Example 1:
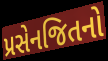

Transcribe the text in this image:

પ્રસેનજિતનો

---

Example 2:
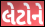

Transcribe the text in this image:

લેટોને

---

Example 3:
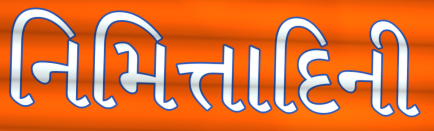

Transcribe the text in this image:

નિમિત્તાદિની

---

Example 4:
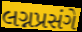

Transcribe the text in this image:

લગ્નપ્રસંગે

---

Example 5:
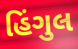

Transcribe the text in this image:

હિંગુલ